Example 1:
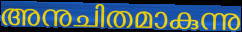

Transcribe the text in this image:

അനുചിതമാകുന്നു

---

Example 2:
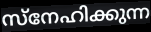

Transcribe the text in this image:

സ്നേഹിക്കുന്ന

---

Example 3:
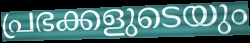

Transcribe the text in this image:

പ്രഭക്കളുടെയും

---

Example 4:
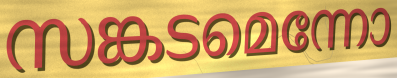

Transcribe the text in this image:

സങ്കടമെന്നോ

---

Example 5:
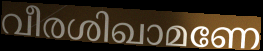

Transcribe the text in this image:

വീരശിഖാമണേ